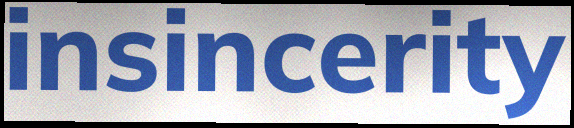
insincerity